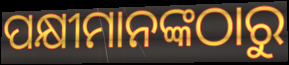
ପକ୍ଷୀମାନଙ୍କଠାରୁ